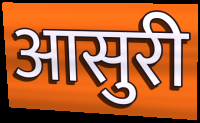
आसुरी